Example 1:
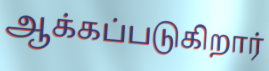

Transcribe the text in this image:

ஆக்கப்படுகிறார்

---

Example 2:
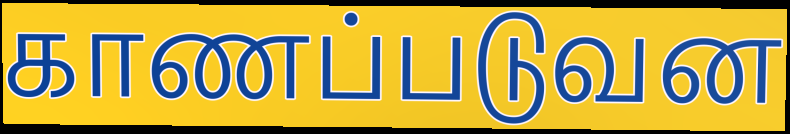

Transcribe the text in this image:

காணப்படுவன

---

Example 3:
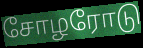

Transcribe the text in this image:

சோழரோடு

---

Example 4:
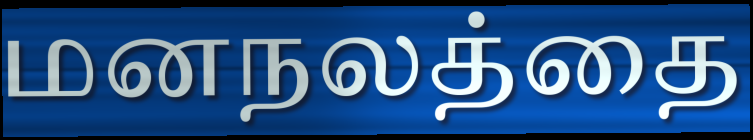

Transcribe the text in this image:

மனநலத்தை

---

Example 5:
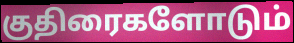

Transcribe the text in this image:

குதிரைகளோடும்